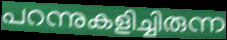
പറന്നുകളിച്ചിരുന്ന